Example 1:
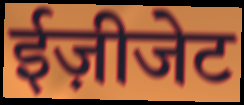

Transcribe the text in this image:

ईज़ीजेट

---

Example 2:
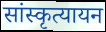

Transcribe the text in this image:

सांस्कृत्यायन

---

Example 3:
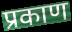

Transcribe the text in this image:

प्रकाण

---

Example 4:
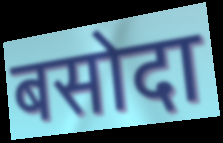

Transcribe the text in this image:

बसोदा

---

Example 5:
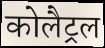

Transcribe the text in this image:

कोलैट्रल